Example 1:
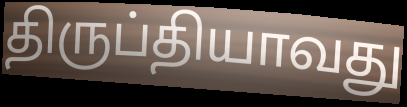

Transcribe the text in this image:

திருப்தியாவது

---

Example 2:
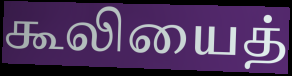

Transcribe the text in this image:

கூலியைத்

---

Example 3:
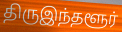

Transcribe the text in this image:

திருஇந்தளூர்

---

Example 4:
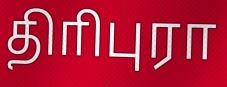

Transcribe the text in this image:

திரிபுரா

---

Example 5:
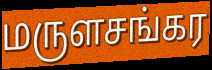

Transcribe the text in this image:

மருளசங்கர